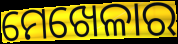
ମେଖେଳାର